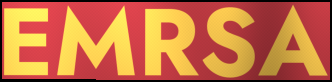
EMRSA